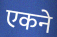
एकने